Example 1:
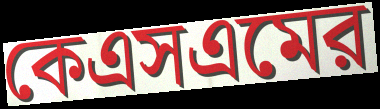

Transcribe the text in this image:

কেএসএমের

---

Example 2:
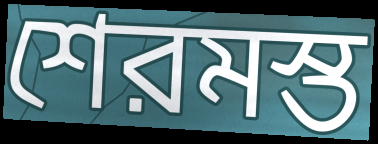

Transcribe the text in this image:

শেরমস্ত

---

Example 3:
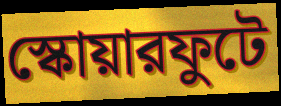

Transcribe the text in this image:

স্কোয়ারফুটে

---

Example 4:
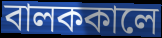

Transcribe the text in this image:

বালককালে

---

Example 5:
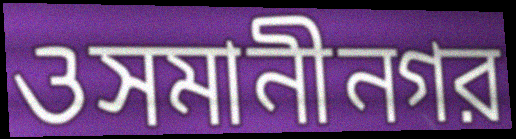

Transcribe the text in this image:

ওসমানীনগর